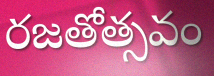
రజతోత్సవం